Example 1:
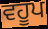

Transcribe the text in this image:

ਵਹੂਪ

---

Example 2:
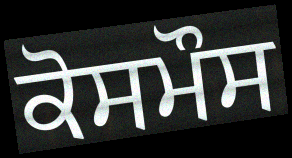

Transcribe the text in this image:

ਕੋਸਮੌਸ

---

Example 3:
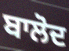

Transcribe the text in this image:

ਬਾਲੋਦ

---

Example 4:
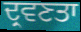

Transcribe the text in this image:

ਦ੍ਰਵਣਤਾ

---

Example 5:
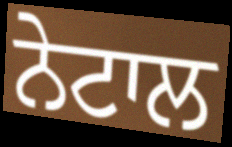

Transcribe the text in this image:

ਨੇਟਾਲ